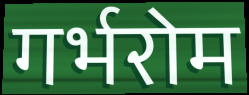
गर्भरोम